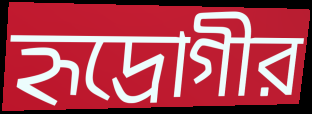
হৃদ্রোগীর